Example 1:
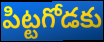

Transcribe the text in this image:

పిట్టగోడకు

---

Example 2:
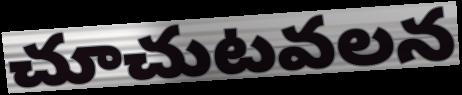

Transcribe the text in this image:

చూచుటవలన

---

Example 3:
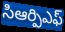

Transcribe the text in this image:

సిఆర్పిఎఫ్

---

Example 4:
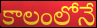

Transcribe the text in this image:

కాలంలోనే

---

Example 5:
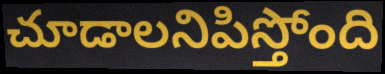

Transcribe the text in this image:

చూడాలనిపిస్తోంది